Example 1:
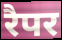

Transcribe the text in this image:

रैपर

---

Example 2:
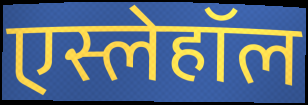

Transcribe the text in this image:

एस्लेहॉल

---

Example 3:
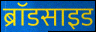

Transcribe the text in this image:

ब्रॉडसाइड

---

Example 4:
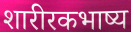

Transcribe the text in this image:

शारीरकभाष्य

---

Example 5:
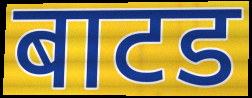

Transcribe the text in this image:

बाटड